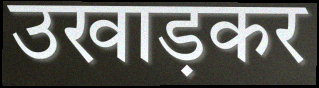
उखाड़कर